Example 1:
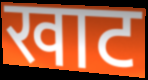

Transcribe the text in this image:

खाट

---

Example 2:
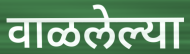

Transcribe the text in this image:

वाळलेल्या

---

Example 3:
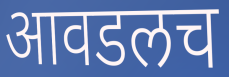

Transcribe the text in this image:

आवडलच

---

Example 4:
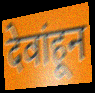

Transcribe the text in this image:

देवांहून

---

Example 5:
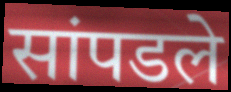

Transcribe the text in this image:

सांपडले